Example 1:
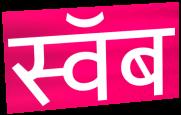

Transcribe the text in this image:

स्वॅब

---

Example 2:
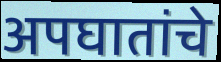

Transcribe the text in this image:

अपघातांचे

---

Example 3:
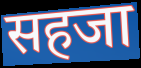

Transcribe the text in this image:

सहजा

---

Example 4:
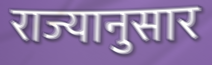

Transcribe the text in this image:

राज्यानुसार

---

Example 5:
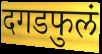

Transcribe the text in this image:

दगडफुलं